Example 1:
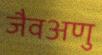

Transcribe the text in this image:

जैवअणु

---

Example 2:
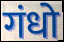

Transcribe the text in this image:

गंधो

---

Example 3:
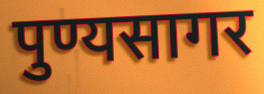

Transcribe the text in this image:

पुण्यसागर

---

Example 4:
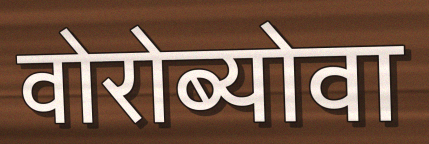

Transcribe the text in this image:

वोरोब्योवा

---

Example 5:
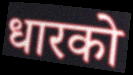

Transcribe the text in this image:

धारको